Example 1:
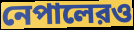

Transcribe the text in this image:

নেপালেরও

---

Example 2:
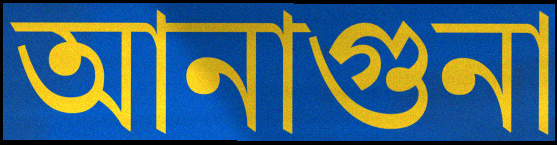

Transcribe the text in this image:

আনাগুনা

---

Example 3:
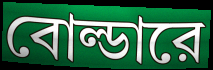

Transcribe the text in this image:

বোল্ডারে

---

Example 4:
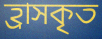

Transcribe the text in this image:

হ্রাসকৃত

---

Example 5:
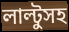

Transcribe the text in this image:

লাল্টুসহ